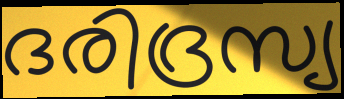
ദരിദ്രസ്യ